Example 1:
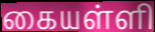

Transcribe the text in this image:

கையள்ளி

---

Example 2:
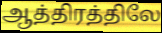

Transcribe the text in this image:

ஆத்திரத்திலே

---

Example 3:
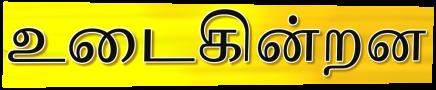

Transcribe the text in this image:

உடைகின்றன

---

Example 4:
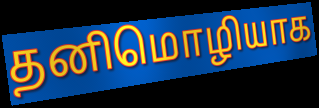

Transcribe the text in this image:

தனிமொழியாக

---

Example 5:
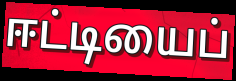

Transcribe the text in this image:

ஈட்டியைப்